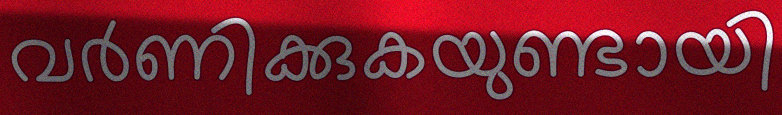
വർണിക്കുകയുണ്ടായി